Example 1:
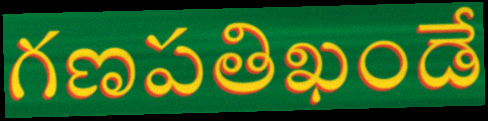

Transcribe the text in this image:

గణపతిఖండే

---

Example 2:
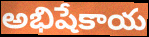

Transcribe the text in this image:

అభిషేకాయ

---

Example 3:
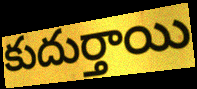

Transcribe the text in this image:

కుదుర్తాయి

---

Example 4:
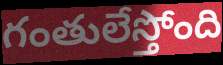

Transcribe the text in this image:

గంతులేస్తోంది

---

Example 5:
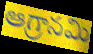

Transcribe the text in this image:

ఆగ్రానమి